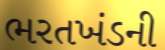
ભરતખંડની